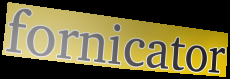
fornicator